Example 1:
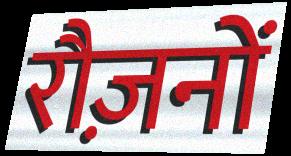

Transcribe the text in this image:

रौज़नों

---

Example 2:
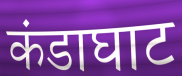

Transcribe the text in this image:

कंडाघाट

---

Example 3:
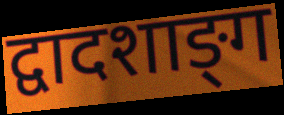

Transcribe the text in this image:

द्वादशाङ्ग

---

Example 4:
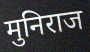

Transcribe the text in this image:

मुनिराज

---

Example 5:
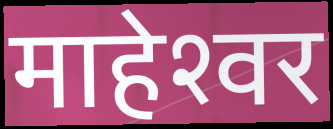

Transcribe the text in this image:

माहेश्वर